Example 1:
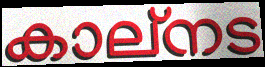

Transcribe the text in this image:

കാല്നട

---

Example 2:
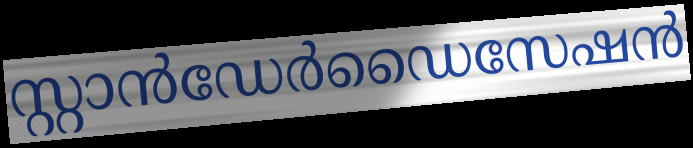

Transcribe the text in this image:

സ്റ്റാൻഡേർഡൈസേഷൻ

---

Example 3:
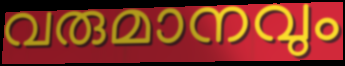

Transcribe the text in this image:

വരുമാനവും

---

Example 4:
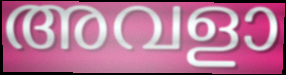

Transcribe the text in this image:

അവളാ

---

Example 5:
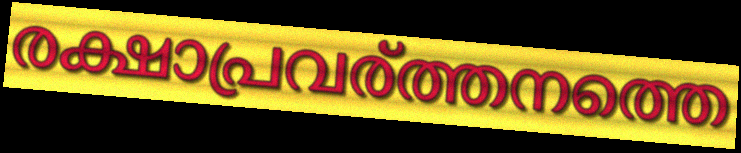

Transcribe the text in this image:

രക്ഷാപ്രവര്ത്തനത്തെ